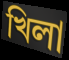
খিলা